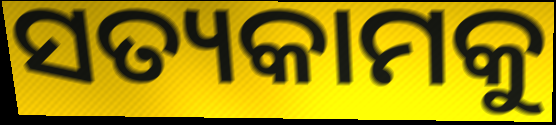
ସତ୍ୟକାମକୁ